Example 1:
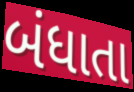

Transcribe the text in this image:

બંધાતા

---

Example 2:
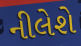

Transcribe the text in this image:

નીલેશે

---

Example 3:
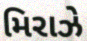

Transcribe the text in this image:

મિરાઝે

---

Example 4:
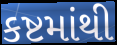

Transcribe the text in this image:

કષ્ટમાંથી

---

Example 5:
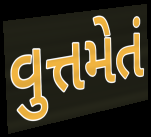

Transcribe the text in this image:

વુત્તમેતં